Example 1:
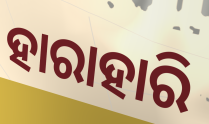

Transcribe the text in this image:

ହାରାହାରି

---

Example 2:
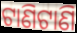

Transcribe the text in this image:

ଟାଣିଟାଣି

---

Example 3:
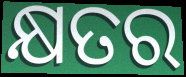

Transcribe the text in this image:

କ୍ଷତର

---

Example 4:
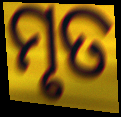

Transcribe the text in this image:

ମୃତ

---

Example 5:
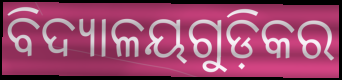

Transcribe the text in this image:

ବିଦ୍ୟାଳୟଗୁଡ଼ିକର